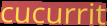
cucurrit